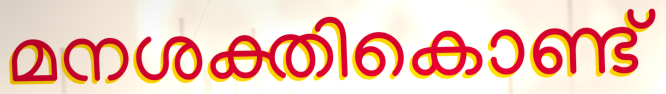
മനശക്തികൊണ്ട്